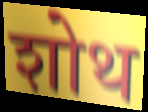
शोथ